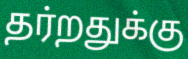
தர்றதுக்கு